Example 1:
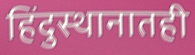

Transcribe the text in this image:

हिंदुस्थानातही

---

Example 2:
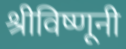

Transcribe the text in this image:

श्रीविष्णूनी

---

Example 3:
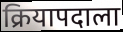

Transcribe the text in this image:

क्रियापदाला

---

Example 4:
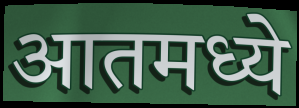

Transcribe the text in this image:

आतमध्ये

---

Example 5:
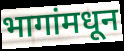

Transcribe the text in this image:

भागांमधून